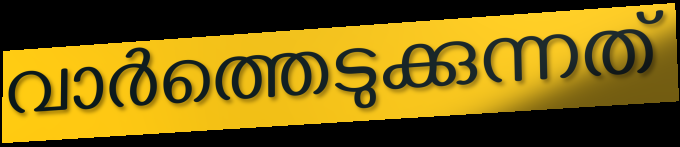
വാർത്തെടുക്കുന്നത്